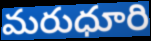
మరుధూరి